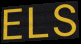
ELS